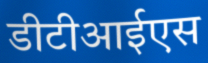
डीटीआईएस